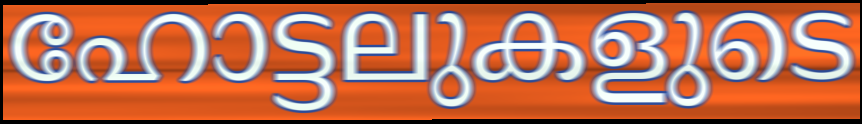
ഹോട്ടലുകളുടെ